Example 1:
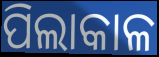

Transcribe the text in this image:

ପିଲାକାଳ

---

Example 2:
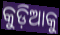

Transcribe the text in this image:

କୁଡ଼ିଆକୁ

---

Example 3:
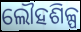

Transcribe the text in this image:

ଲୌହଶିଳ୍ପ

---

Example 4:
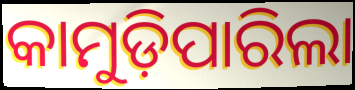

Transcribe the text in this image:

କାମୁଡ଼ିପାରିଲା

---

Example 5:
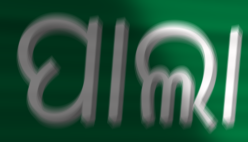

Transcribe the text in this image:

ପାଲା